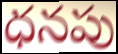
ధనపు